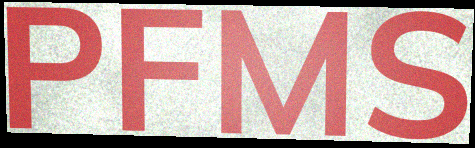
PFMS